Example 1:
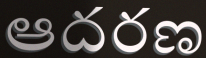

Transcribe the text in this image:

ఆదరణ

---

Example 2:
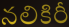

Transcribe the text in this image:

నలికిరీ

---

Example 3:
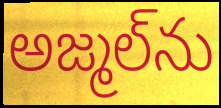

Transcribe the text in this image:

అజ్మల్‌ను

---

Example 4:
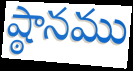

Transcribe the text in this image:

ష్ఠానము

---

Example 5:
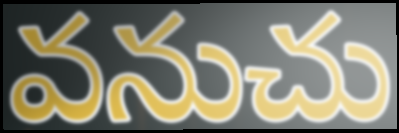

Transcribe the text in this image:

వనుచు